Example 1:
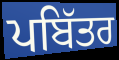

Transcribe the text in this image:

ਪਬਿੱਤਰ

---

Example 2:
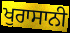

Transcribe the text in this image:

ਖੁਰਾਸਾਨੀ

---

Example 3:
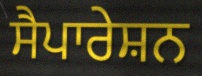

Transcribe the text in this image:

ਸੈਪਾਰੇਸ਼ਨ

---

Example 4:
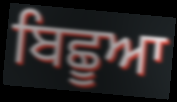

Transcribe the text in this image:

ਬਿਛੂਆ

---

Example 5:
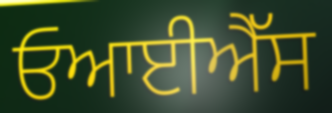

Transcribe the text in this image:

ਓਆਈਐੱਸ